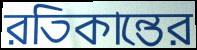
রতিকান্তের